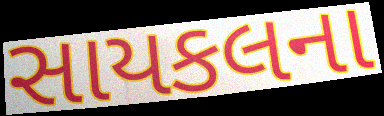
સાયકલના